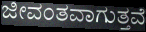
ಜೀವಂತವಾಗುತ್ತವೆ